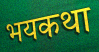
भयकथा